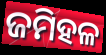
ଜମିହଳ